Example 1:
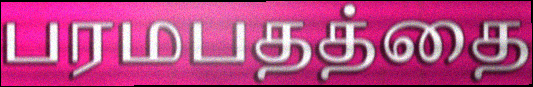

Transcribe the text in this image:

பரமபதத்தை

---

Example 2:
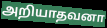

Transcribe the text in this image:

அறியாதவனா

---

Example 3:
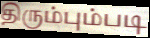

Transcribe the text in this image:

திரும்பும்படி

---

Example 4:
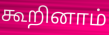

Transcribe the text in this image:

கூறினாம்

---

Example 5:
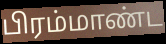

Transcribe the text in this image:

பிரம்மாண்ட